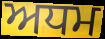
ਅਧਮ